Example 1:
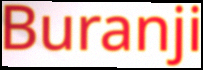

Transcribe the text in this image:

Buranji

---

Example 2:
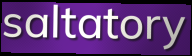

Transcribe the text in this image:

saltatory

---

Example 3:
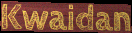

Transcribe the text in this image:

Kwaidan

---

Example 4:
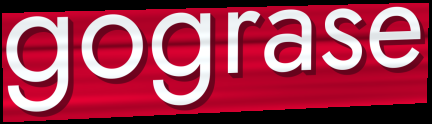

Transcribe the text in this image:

gograse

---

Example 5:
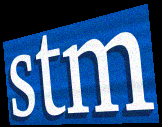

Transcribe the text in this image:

stm